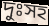
দুঃসহ